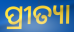
ପ୍ରୀତ୍ୟା